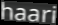
haari